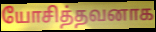
யோசித்தவனாக